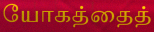
யோகத்தைத்